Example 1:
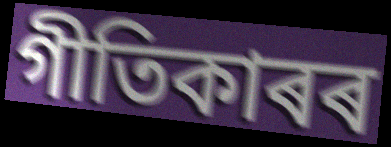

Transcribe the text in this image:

গীতিকাৰৰ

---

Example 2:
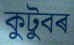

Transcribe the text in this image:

কুটুবৰ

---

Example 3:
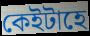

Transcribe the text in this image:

কেইটাহে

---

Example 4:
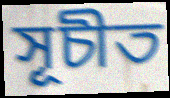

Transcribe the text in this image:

সূচীত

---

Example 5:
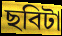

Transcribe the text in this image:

ছবিটা